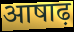
आषाढ़